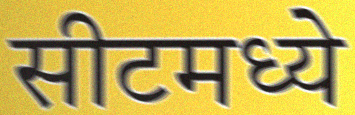
सीटमध्ये